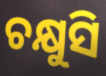
ଚକ୍ଷୁସି